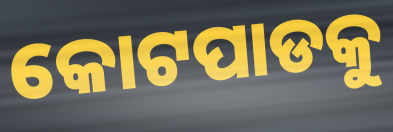
କୋଟପାଡକୁ